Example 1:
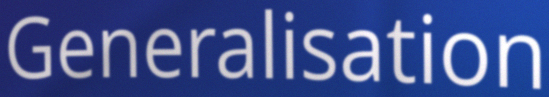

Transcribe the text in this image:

Generalisation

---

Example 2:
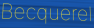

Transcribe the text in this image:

Becquerel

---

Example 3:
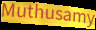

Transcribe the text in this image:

Muthusamy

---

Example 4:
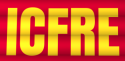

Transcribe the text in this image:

ICFRE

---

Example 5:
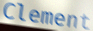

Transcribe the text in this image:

Clement